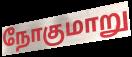
நோகுமாறு